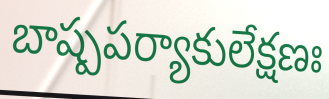
బాష్పపర్యాకులేక్షణః